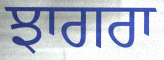
ਝਾਗਰਾ